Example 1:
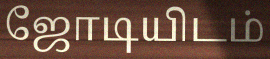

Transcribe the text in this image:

ஜோடியிடம்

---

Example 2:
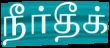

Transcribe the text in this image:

நீர்தீக்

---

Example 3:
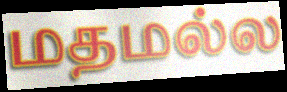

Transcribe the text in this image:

மதமல்ல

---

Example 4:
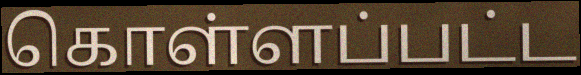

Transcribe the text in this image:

கொள்ளப்பட்ட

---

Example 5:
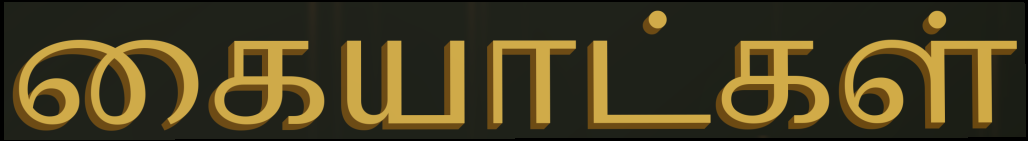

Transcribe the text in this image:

கையாட்கள்